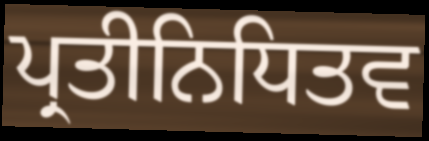
ਪ੍ਰਤੀਨਿਧਿਤਵ